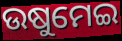
ଉଷୁମେଇ